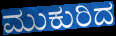
ಮುಕುರಿದ